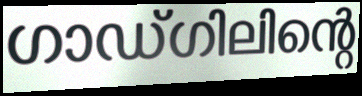
ഗാഡ്ഗിലിന്റെ